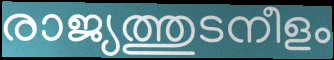
രാജ്യത്തുടനീളം